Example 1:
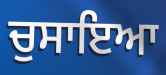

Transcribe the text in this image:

ਚੁਸਾਇਆ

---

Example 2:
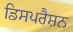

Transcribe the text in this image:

ਡਿਸਪਰੈਸ਼ਨ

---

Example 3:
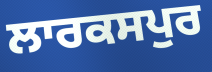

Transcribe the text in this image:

ਲਾਰਕਸਪੁਰ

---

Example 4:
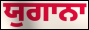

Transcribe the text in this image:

ਯੁਗਾਨਾ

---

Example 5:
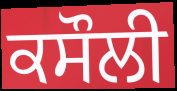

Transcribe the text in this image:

ਕਸੌਲੀ